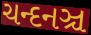
ચન્દનઞ્ચ